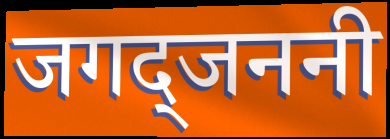
जगद्जननी